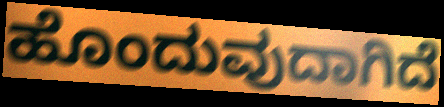
ಹೊಂದುವುದಾಗಿದೆ